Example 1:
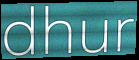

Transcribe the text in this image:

dhur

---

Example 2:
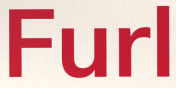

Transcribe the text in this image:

Furl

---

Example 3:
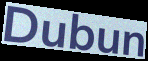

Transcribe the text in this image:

Dubun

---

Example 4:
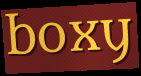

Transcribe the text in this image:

boxy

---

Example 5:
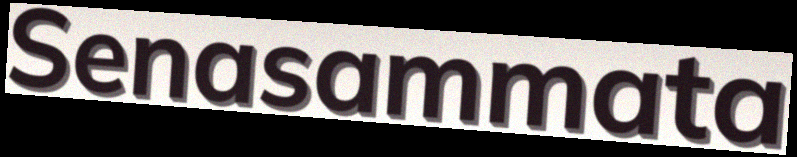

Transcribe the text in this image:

Senasammata